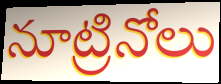
నూట్రినోలు